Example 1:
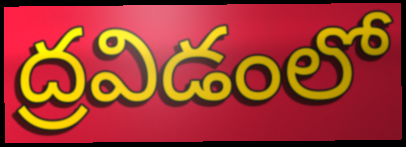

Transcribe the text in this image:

ద్రవిడంలో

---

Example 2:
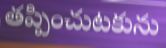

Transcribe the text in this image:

తప్పించుటకును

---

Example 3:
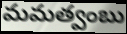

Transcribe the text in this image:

మమత్వంబు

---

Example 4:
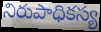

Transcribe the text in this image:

నిరుపాధికస్య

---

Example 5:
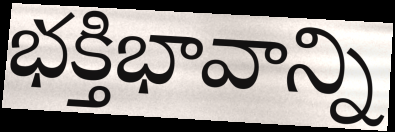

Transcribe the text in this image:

భక్తిభావాన్ని